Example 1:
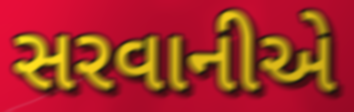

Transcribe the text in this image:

સરવાનીએ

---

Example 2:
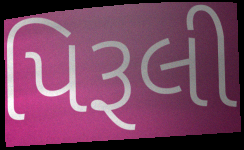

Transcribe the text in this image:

પિરૂલી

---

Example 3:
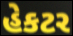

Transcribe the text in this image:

હેકટર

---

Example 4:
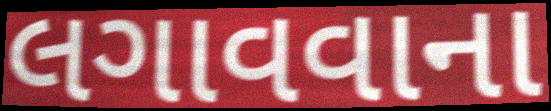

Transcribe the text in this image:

લગાવવાના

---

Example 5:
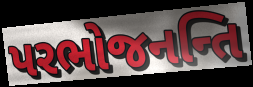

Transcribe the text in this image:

પરભોજનન્તિ